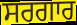
ਸਰਗਾਰ